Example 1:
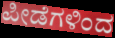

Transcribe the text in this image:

ಪೀಡೆಗಳಿಂದ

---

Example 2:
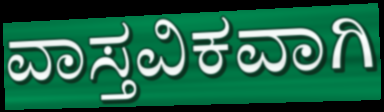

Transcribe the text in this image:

ವಾಸ್ತವಿಕವಾಗಿ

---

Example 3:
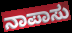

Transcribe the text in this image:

ನಾಪಾಸು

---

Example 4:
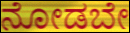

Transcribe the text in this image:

ನೋಡಬೇ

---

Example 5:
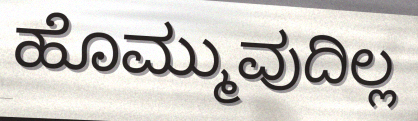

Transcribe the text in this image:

ಹೊಮ್ಮುವುದಿಲ್ಲ